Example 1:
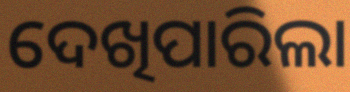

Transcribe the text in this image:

ଦେଖିପାରିଲା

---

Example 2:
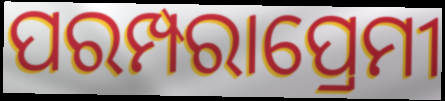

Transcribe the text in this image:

ପରମ୍ପରାପ୍ରେମୀ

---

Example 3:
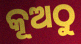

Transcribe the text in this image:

କୂଅଠୁ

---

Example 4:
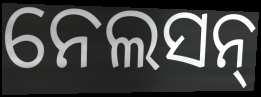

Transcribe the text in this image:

ନେଲସନ୍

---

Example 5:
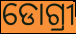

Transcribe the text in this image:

ଡୋଗ୍ରୀ